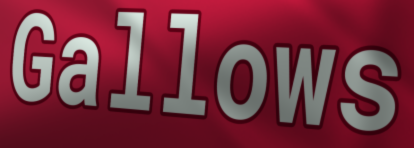
Gallows